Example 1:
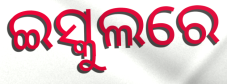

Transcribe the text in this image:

ଇସ୍କୁଲରେ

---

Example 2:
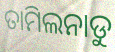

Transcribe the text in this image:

ତାମିଲନାଡୁ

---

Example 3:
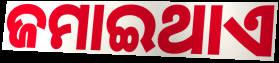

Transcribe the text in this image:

ଜମାଇଥାଏ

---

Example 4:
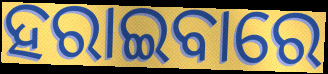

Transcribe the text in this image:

ହରାଇବାରେ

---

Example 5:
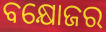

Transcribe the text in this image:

ବକ୍ଷୋଜର